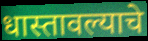
धास्तावल्याचे